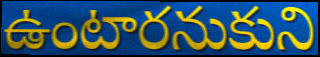
ఉంటారనుకుని